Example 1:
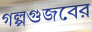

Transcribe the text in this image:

গল্পগুজবের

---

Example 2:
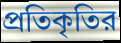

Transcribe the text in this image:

প্রতিকৃতির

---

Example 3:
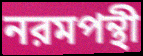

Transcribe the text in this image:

নরমপন্থী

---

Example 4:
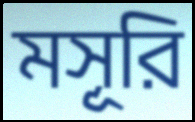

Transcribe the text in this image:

মসূরি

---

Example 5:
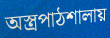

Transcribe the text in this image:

অস্ত্রপাঠশালায়